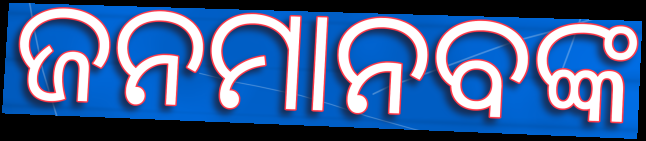
ଜନମାନବଙ୍କ